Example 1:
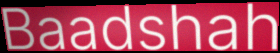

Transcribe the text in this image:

Baadshah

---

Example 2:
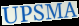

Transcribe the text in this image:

UPSMA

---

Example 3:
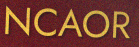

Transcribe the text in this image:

NCAOR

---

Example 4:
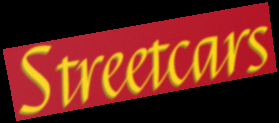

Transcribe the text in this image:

Streetcars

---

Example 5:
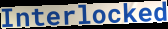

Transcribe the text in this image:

Interlocked